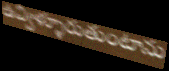
ఉవ్విళ్ళూరుతుంటాను